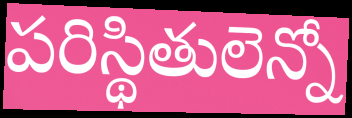
పరిస్థితులెన్నో